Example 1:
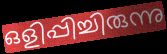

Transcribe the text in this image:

ഒളിപ്പിച്ചിരുന്നു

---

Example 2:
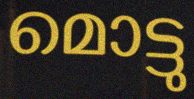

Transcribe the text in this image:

മൊട്ടു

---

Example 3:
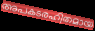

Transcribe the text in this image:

അപകടരഹിതമായ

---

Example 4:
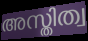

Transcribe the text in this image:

അസ്തിത്വ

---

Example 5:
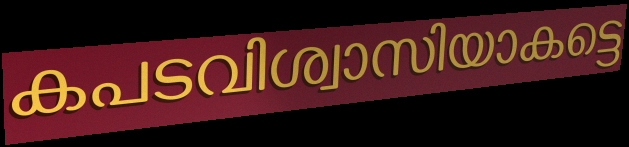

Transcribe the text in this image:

കപടവിശ്വാസിയാകട്ടെ